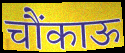
चौंकाऊ